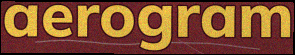
aerogram